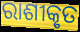
ରାଶୀକୃତ